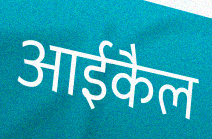
आईकैल